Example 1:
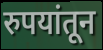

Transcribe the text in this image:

रुपयांतून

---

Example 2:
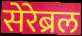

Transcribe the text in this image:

सेरेब्रल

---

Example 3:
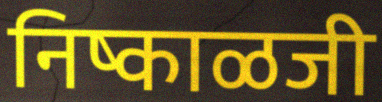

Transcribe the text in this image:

निष्काळजी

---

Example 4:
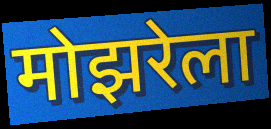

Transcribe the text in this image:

मोझरेला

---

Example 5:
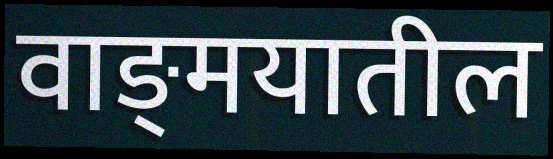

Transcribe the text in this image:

वाङ्मयातील